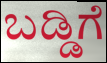
ಬಡ್ಡಿಗೆ